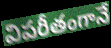
విపరీతంగానే